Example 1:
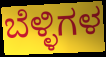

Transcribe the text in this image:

ಬೆಳ್ಳಿಗಳ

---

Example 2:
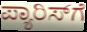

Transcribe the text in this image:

ಪ್ಯಾರಿಸ್‍ಗೆ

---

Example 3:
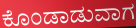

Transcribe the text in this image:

ಕೊಂಡಾಡುವಾಗ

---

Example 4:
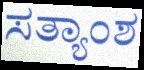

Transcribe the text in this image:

ಸತ್ಯಾಂಶ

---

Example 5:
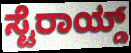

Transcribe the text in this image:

ಸ್ಟೆರಾಯ್ಡ್